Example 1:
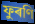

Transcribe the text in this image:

ফুৰণি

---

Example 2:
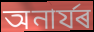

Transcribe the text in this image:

অনাৰ্যৰ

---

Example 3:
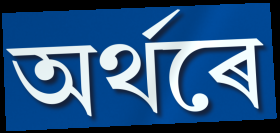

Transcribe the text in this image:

অৰ্থৰে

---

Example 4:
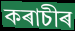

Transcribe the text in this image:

কৰাচীৰ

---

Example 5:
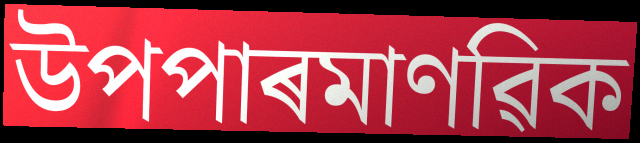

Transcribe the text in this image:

উপপাৰমাণৱিক